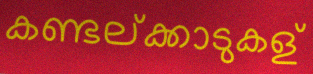
കണ്ടല്ക്കാടുകള്